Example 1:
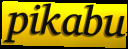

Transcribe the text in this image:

pikabu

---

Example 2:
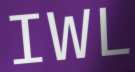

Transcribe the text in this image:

IWL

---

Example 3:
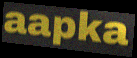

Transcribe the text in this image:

aapka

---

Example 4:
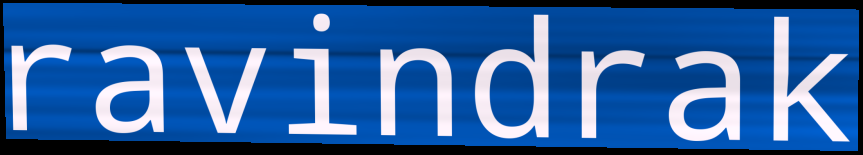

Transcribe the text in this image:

ravindrak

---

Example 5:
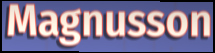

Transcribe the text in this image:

Magnusson